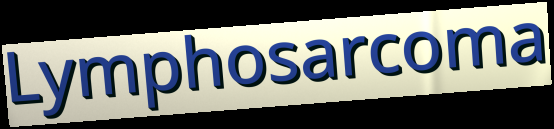
Lymphosarcoma